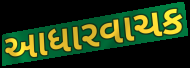
આધારવાચક